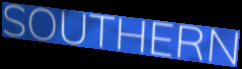
SOUTHERN